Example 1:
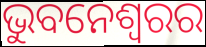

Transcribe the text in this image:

ଭୁବନେଶ୍ଵରର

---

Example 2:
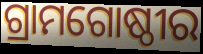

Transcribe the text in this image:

ଗ୍ରାମଗୋଷ୍ଠୀର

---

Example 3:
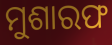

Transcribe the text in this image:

ମୁଶାରଫ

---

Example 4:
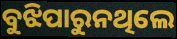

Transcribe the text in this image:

ବୁଝିପାରୁନଥିଲେ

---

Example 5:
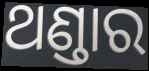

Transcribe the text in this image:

ଥଣ୍ଡାର